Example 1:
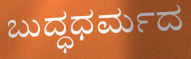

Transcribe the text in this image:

ಬುದ್ಧಧರ್ಮದ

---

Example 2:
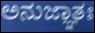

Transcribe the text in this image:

ಅನುಜ್ಞಾತಃ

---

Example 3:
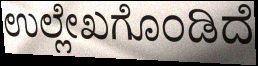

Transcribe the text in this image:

ಉಲ್ಲೇಖಗೊಂಡಿದೆ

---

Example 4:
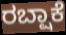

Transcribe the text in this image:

ರಬ್ಷಾಕೆ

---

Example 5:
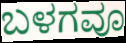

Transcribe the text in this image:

ಬಳಗವೂ